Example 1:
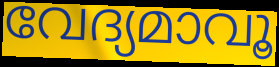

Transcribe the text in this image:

വേദ്യമാവൂ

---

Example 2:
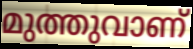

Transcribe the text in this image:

മുത്തുവാണ്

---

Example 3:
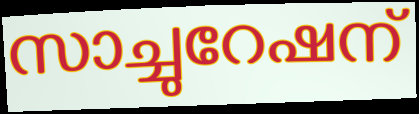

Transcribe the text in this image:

സാച്ചുറേഷന്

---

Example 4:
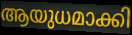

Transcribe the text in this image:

ആയുധമാക്കി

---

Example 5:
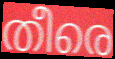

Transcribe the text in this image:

തീരെ